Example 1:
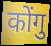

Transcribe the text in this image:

कोंगु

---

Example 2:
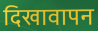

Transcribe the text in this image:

दिखावापन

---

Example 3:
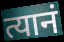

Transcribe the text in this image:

त्यानं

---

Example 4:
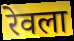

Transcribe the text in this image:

रेवला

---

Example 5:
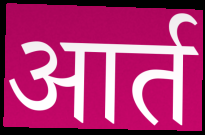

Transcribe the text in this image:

आर्त